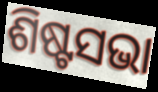
ଶିଷ୍ଟସଭା